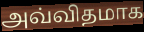
அவ்விதமாக